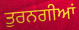
ਤੁਰਨਗੀਆਂ